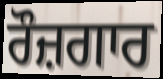
ਰੌਜ਼ਗਾਰ